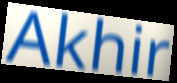
Akhir